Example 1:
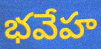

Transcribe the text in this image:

భవేహ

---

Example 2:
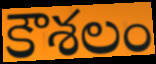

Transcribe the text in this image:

కౌశలం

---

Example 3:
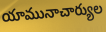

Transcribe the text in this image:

యామునాచార్యుల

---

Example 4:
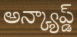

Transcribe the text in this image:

అన్క్యాప్డ్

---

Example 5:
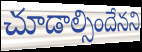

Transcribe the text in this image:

చూడాల్సిందేనని